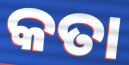
କତା